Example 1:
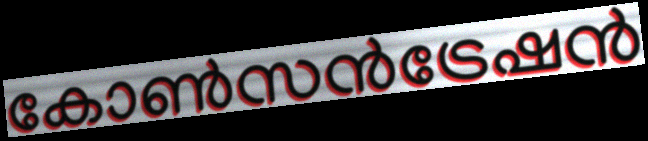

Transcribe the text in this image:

കോൺസൻട്രേഷൻ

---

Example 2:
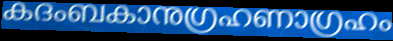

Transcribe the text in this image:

കദംബകാനുഗ്രഹണാഗ്രഹം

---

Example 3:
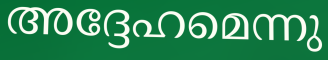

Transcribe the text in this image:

അദ്ദേഹമെന്നു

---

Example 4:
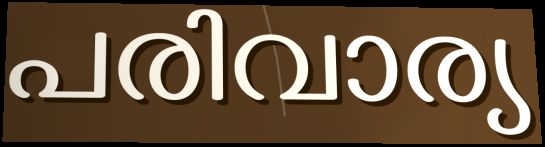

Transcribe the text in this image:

പരിവാര്യ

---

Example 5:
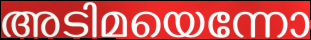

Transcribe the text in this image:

അടിമയെന്നോ